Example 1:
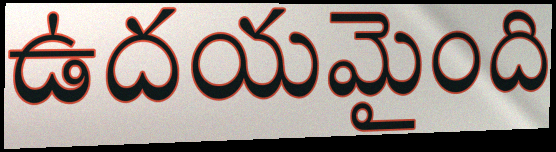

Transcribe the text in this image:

ఉదయమైంది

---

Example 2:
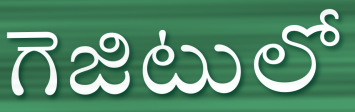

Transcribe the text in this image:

గెజిటులో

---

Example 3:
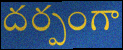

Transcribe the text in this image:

దర్పంగా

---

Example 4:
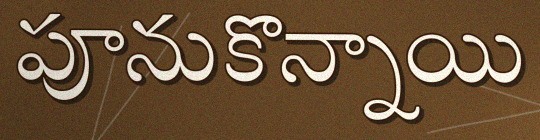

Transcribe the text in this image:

పూనుకొన్నాయి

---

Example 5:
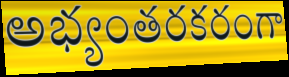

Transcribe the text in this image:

అభ్యంతరకరంగా